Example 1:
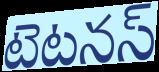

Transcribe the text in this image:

టెటనస్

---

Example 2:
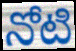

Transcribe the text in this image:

నోటి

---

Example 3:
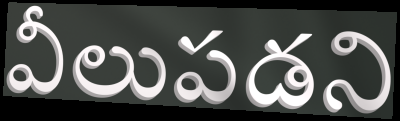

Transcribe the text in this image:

వీలుపడని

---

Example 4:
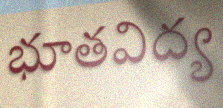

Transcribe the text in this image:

భూతవిద్య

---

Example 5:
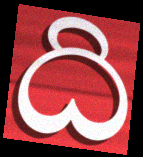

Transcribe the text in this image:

ది